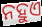
ନହୁଏ